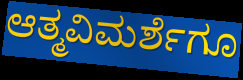
ಆತ್ಮವಿಮರ್ಶೆಗೂ